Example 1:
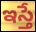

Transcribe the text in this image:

ఇస్తే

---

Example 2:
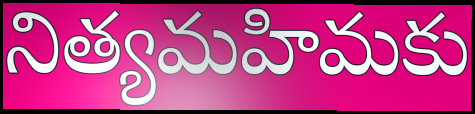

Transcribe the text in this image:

నిత్యమహిమకు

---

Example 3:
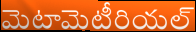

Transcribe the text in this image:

మెటామెటీరియల్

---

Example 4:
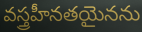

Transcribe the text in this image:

వస్త్రహీనతయైనను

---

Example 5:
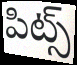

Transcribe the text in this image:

పిట్స్